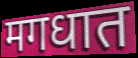
मगधात